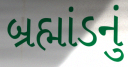
બ્રહ્માંડનું